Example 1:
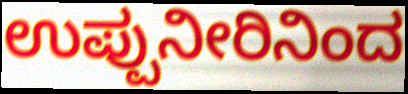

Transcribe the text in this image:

ಉಪ್ಪುನೀರಿನಿಂದ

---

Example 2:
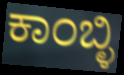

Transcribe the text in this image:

ಕಾಂಬ್ಳಿ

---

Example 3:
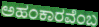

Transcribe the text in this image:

ಅಹಂಕಾರವೆಂಬ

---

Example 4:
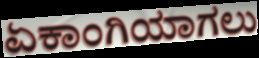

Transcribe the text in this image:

ಏಕಾಂಗಿಯಾಗಲು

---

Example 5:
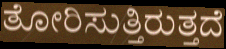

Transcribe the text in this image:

ತೋರಿಸುತ್ತಿರುತ್ತದೆ